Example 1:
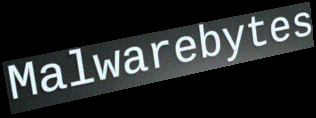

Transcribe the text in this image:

Malwarebytes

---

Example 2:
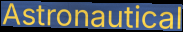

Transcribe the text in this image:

Astronautical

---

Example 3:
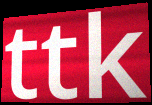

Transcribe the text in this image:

ttk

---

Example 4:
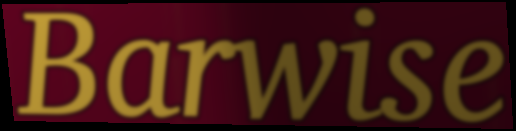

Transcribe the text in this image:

Barwise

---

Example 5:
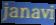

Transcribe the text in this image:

janavi